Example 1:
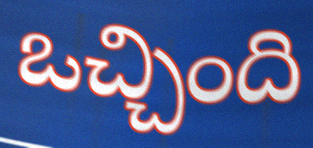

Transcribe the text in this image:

ఒచ్చింది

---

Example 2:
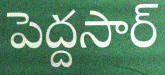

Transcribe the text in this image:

పెద్దసార్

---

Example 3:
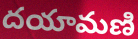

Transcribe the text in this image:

దయామణి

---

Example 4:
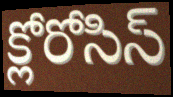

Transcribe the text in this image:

క్లోరోసిస్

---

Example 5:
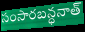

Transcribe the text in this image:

సంసారబన్ధనాత్